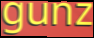
gunz